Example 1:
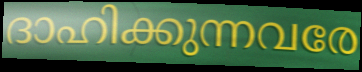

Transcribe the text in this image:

ദാഹിക്കുന്നവരേ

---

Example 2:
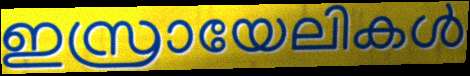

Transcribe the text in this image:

ഇസ്രായേലികൾ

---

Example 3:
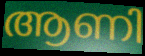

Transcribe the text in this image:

ആണി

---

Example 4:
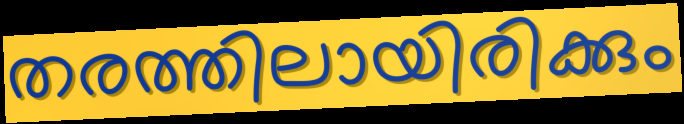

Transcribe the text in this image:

തരത്തിലായിരിക്കും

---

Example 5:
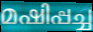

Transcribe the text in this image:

മഷിപ്പച്ച